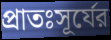
প্রাতঃসূর্যের